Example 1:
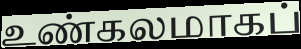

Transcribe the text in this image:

உண்கலமாகப்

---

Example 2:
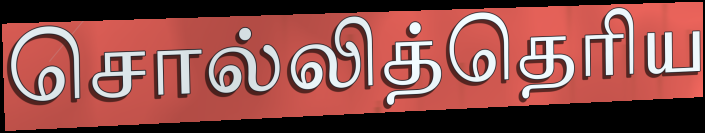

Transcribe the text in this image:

சொல்லித்தெரிய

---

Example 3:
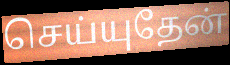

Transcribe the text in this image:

செய்யுதேன்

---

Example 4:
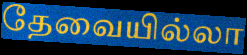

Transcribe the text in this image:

தேவையில்லா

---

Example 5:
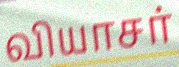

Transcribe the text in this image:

வியாசர்